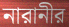
নারানীর